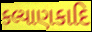
કલ્યાણકાદિ